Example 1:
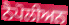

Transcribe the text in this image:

ਨੈਪੋਲੀਅਨ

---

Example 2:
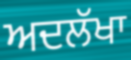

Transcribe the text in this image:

ਅਦਲੱਖਾ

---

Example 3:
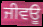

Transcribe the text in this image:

ਜੀਵਊ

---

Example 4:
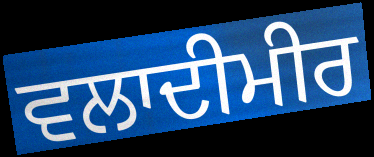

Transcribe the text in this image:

ਵਲਾਦੀਮੀਰ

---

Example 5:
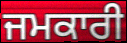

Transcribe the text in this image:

ਜਮਕਾਰੀ